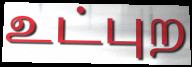
உட்புற